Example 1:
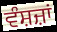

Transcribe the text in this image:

ਵੰਸ਼ਜ਼ਾਂ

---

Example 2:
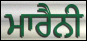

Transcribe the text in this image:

ਮਾਰੈਨੀ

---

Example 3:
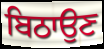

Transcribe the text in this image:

ਬਿਠਾਉਣ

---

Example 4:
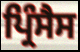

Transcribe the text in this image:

ਪ੍ਰਿੰਸੈਸ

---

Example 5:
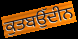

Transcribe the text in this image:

ਕੁਤਬਉੱਦੀਨ